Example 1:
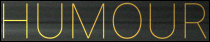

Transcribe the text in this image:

HUMOUR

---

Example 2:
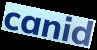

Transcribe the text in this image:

canid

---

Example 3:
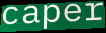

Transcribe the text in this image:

caper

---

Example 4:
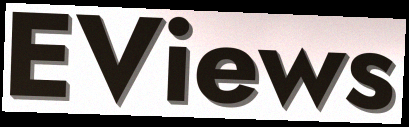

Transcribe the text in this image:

EViews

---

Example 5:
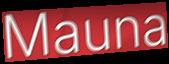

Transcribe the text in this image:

Mauna